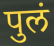
पुलं